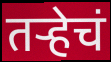
तर्‍हेचं